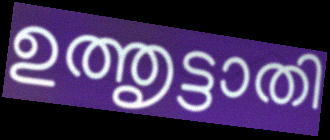
ഉത്തൃട്ടാതി